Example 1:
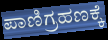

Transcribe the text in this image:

ಪಾಣಿಗ್ರಹಣಕ್ಕೆ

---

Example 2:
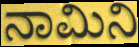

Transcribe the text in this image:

ನಾಮಿನಿ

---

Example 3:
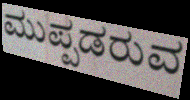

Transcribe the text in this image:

ಮುಪ್ಪಡರುವ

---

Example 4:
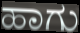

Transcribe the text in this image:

ಹಾಗು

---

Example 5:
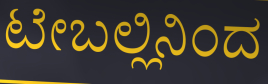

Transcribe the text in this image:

ಟೇಬಲ್ಲಿನಿಂದ